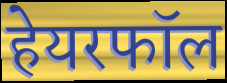
हेयरफॉल